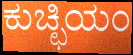
ಕುಚ್ಛಿಯಂ